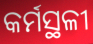
କର୍ମସ୍ଥଳୀ